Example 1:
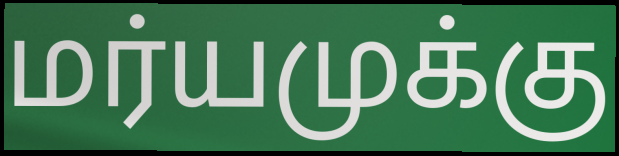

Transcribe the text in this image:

மர்யமுக்கு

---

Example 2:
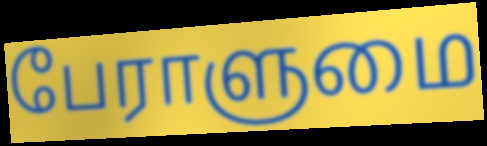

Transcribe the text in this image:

பேராளுமை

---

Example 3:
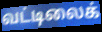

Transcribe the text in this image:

வட்டிலைக்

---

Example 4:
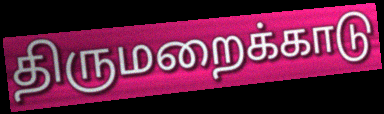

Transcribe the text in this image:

திருமறைக்காடு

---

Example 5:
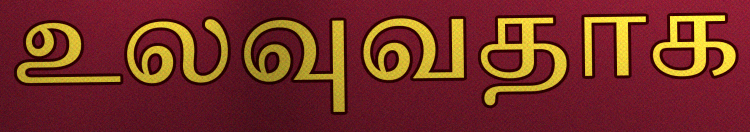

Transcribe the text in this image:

உலவுவதாக